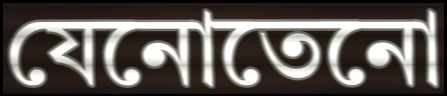
যেনোতেনো